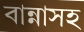
বান্নাসহ